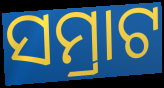
ସମ୍ରାଟ